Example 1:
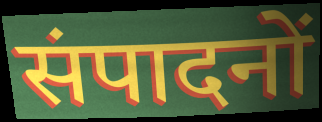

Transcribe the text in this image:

संपादनों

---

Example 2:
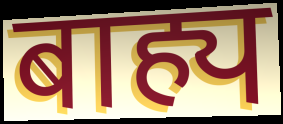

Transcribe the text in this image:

बाह्य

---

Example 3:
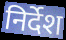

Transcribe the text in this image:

निर्देश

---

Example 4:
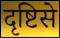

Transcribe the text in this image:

दृष्टिसे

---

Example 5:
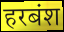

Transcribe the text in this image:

हरबंश